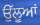
ਉੱਲੂਆਂ